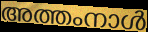
അത്തംനാൾ